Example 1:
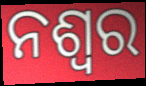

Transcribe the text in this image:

ନଶ୍ଵର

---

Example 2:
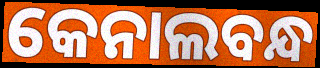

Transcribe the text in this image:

କେନାଲବନ୍ଧ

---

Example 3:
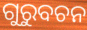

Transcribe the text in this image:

ଗୁରୁବଚନ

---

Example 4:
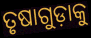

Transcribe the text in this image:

ତୃଷାଗୁଡ଼ାକୁ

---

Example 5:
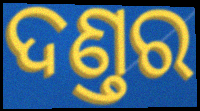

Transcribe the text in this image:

ଦଣ୍ତର